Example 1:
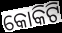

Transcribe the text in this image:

କୋକିଟି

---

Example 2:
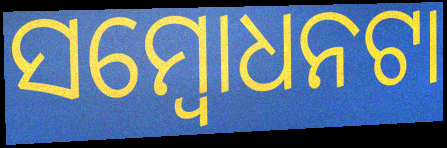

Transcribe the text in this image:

ସମ୍ବୋଧନଟା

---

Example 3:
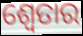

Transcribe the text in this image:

ଶ୍ୱେତାର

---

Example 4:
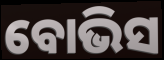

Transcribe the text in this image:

ବୋଭିସ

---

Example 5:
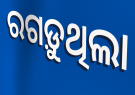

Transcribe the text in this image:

ରଗଡ଼ୁଥିଲା